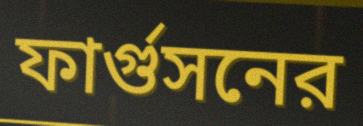
ফার্গুসনের